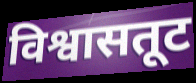
विश्वासतूट